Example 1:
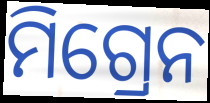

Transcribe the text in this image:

ମିଗ୍ରେନ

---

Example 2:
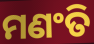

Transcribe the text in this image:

ମଣଂତି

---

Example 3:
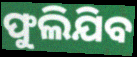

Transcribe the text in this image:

ଫୁଲିଯିବ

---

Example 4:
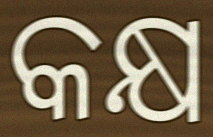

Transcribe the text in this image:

କକ୍ଷ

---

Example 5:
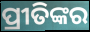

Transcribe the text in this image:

ପ୍ରୀତିଙ୍କର